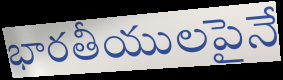
భారతీయులపైనే